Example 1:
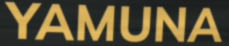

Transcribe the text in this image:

YAMUNA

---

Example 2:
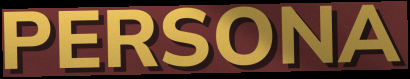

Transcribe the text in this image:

PERSONA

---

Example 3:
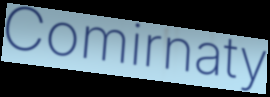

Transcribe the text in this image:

Comirnaty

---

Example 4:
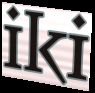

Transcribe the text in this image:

iki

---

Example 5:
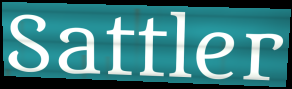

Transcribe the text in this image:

Sattler